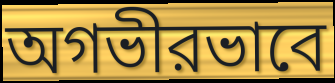
অগভীরভাবে